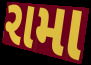
રામા